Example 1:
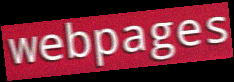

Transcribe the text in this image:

webpages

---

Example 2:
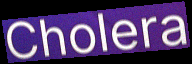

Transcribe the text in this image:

Cholera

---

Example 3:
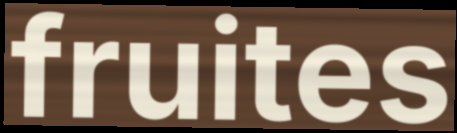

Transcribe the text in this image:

fruites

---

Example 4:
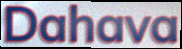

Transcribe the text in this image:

Dahava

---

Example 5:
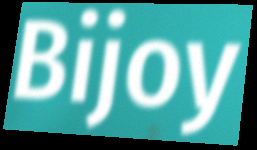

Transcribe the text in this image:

Bijoy